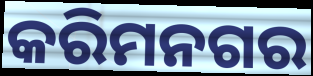
କରିମନଗର